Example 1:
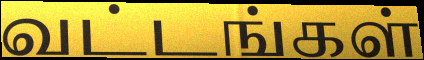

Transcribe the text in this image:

வட்டங்கள்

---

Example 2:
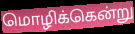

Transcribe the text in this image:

மொழிக்கென்று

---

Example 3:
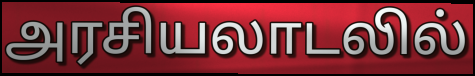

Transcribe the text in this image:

அரசியலாடலில்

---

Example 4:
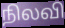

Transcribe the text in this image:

நிலவி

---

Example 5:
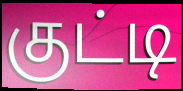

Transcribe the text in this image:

குட்டி